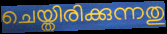
ചെയ്തിരിക്കുന്നതു